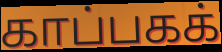
காப்பகக்